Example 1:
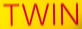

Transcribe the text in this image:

TWIN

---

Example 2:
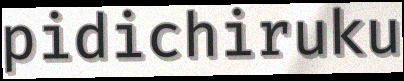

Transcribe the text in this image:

pidichiruku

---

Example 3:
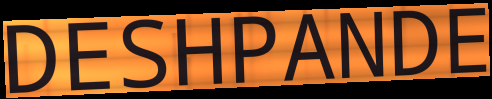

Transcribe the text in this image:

DESHPANDE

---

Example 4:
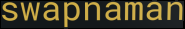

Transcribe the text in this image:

swapnaman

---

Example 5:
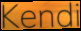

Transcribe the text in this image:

Kendi